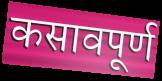
कसावपूर्ण